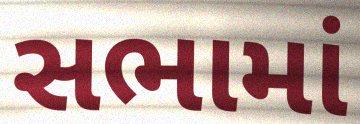
સભામાં